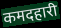
कमदहारी